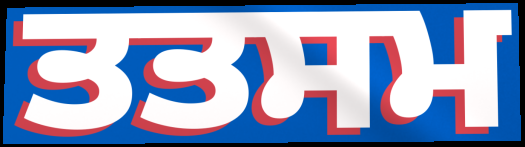
ਤਤਸਮ